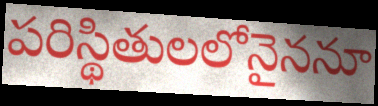
పరిస్థితులలోనైననూ